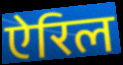
ऐरिल